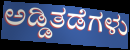
ಅಡ್ಡಿತಡೆಗಳು